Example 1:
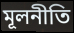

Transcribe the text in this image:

মূলনীতি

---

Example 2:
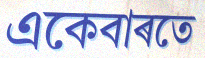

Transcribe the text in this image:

একেবাৰতে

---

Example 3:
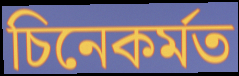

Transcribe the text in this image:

চিনেকৰ্মত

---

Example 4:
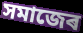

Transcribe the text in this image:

সমাজেৰ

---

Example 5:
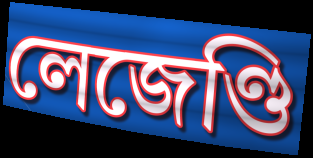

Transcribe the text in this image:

লেজেণ্ডি